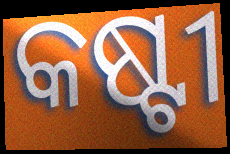
କଷ୍ଟୀ